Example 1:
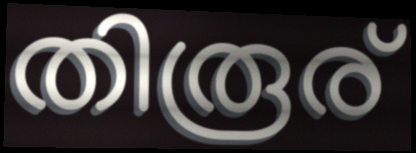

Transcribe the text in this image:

തിരൂര്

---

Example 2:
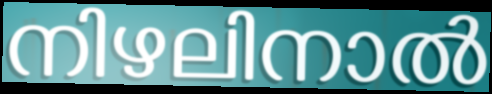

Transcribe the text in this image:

നിഴലിനാൽ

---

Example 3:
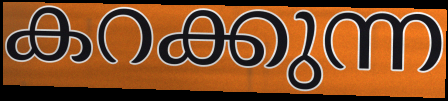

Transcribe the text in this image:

കറക്കുന്ന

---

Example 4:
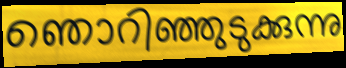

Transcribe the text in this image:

ഞൊറിഞ്ഞുടുക്കുന്നു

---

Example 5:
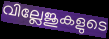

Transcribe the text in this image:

വില്ലേജുകളുടെ